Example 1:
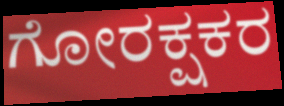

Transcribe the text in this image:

ಗೋರಕ್ಷಕರ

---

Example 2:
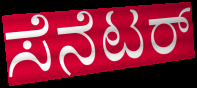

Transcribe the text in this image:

ಸೆನೆಟರ್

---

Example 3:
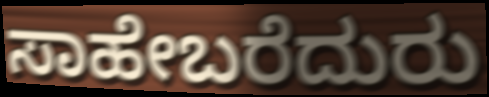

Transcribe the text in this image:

ಸಾಹೇಬರೆದುರು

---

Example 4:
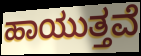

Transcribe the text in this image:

ಹಾಯುತ್ತವೆ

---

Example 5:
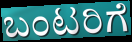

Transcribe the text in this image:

ಬಂಟರಿಗೆ